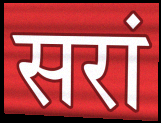
सरां